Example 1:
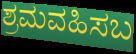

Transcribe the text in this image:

ಶ್ರಮವಹಿಸಬ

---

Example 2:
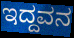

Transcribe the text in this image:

ಇದ್ದವನ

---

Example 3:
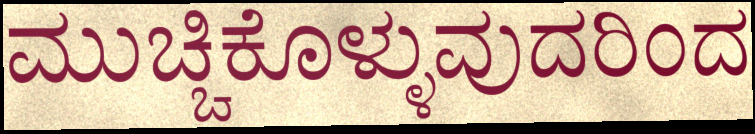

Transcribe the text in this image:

ಮುಚ್ಚಿಕೊಳ್ಳುವುದರಿಂದ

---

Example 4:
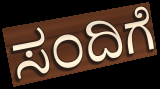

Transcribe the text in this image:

ಸಂದಿಗೆ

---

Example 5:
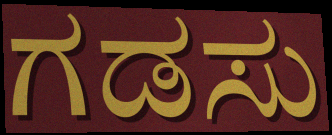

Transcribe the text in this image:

ಗಡಸು